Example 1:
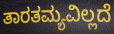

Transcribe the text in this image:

ತಾರತಮ್ಯವಿಲ್ಲದೆ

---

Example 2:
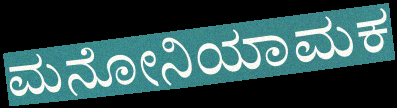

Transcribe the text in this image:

ಮನೋನಿಯಾಮಕ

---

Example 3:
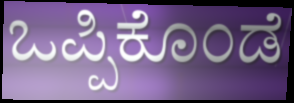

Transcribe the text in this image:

ಒಪ್ಪಿಕೊಂಡೆ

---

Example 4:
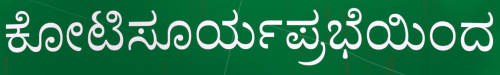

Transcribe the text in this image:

ಕೋಟಿಸೂರ್ಯಪ್ರಭೆಯಿಂದ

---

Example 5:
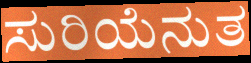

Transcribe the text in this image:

ಸುರಿಯೆನುತ